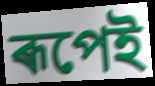
ৰূপেই